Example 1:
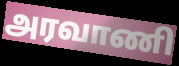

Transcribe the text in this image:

அரவாணி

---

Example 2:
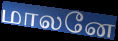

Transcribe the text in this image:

மாலனே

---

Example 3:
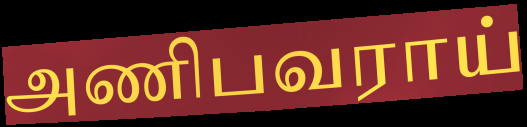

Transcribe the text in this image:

அணிபவராய்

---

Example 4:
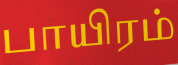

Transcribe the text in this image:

பாயிரம்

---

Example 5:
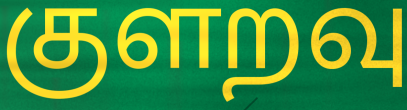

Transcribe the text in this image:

குளறவு